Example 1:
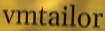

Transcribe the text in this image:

vmtailor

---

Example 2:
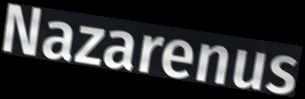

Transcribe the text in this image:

Nazarenus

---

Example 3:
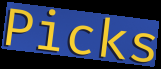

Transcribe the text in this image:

Picks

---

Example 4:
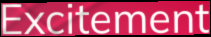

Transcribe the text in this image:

Excitement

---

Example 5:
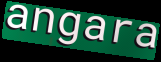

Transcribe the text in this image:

angara